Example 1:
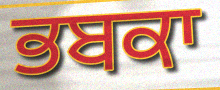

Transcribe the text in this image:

ਭਬਕਾ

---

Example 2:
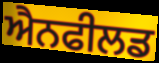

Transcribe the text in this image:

ਐਨਫੀਲਡ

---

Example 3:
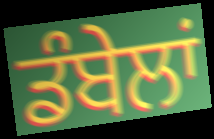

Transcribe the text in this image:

ਡੰਬੇਲਾਂ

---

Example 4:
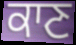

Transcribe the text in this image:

ਕਾਣ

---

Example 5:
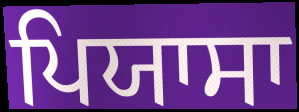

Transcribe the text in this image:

ਪਿਯਾਸਾ